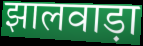
झालवाड़ा